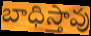
బాధిస్తావు